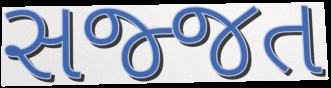
સજ્જત